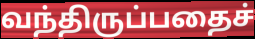
வந்திருப்பதைச்